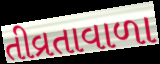
તીવ્રતાવાળા